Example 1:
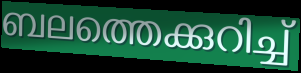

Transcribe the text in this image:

ബലത്തെക്കുറിച്ച്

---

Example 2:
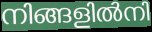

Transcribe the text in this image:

നിങ്ങളിൽനി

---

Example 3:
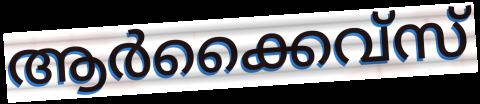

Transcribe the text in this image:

ആർക്കൈവ്സ്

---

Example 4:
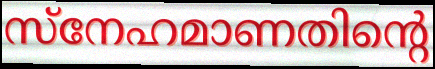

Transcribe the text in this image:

സ്നേഹമാണതിന്റെ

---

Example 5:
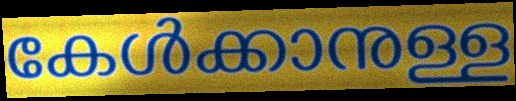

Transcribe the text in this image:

കേൾക്കാനുള്ള